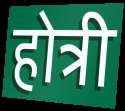
होत्री